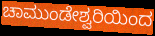
ಚಾಮುಂಡೇಶ್ವರಿಯಿಂದ